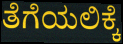
ತೆಗೆಯಲಿಕ್ಕೆ